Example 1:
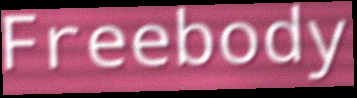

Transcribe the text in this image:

Freebody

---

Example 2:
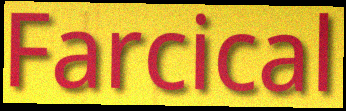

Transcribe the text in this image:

Farcical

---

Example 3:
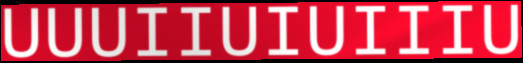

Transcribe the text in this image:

UUUIIUIUIIIU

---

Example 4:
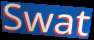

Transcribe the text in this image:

Swat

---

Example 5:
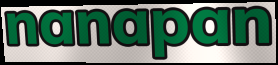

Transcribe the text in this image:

nanapan